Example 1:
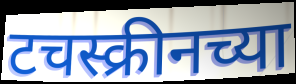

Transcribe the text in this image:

टचस्क्रीनच्या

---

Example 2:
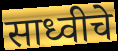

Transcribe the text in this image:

साध्वीचे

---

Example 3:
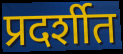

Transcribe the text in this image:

प्रदर्शीत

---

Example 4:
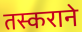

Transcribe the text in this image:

तस्कराने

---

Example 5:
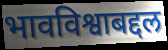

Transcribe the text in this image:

भावविश्वाबद्दल